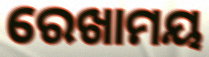
ରେଖାମୟ